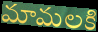
మామలకి